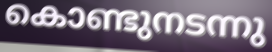
കൊണ്ടുനടന്നു